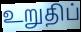
உறுதிப்